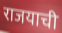
राजयाची